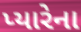
પ્યારેના